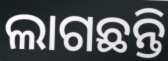
ଲାଗଛନ୍ତି